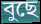
বুছে